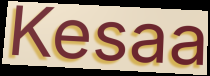
Kesaa